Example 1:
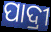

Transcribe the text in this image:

ପାଦ୍ରୀ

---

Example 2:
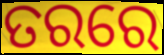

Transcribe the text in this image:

ତରରେ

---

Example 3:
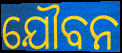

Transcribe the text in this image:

ଯୌବନ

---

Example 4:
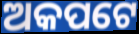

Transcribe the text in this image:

ଅକପଟେ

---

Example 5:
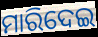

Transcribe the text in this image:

ମାରିଦେଇ